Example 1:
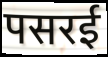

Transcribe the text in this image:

पसरई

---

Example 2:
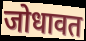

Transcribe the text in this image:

जोधावत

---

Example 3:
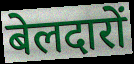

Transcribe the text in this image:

बेलदारों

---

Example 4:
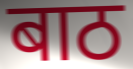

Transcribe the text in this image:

बाठ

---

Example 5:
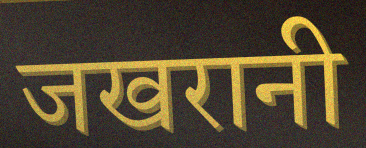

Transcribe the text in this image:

जखरानी